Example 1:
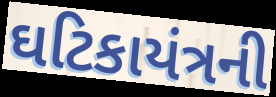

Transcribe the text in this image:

ઘટિકાયંત્રની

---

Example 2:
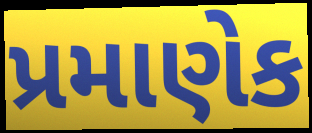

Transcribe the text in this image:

પ્રમાણેક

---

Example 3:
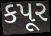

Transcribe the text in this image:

કપૂર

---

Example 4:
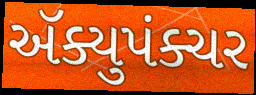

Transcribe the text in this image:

ઍક્યુપંક્ચર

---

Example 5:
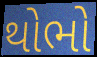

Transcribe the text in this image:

થોભો